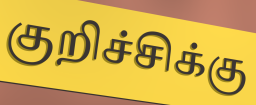
குறிச்சிக்கு